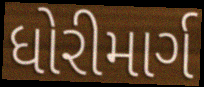
ધોરીમાર્ગ